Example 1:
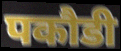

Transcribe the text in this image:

पकौडी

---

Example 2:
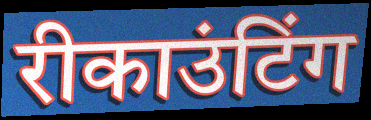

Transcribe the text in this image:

रीकाउंटिंग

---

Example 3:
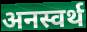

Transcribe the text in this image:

अनस्वर्थ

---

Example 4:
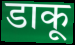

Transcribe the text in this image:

डाकू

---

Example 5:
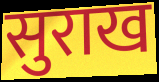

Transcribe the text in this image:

सुराख